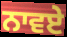
ਨਾਵਏ